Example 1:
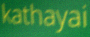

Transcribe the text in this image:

kathayai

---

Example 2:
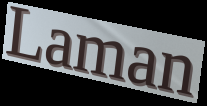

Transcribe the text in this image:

Laman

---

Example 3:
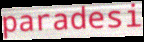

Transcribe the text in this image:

paradesi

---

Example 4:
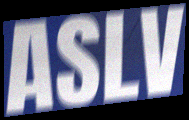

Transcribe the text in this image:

ASLV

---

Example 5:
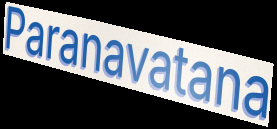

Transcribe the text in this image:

Paranavatana